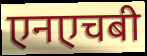
एनएचबी